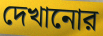
দেখানোর